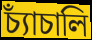
চ্যাঁচালি